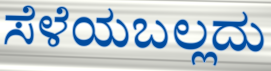
ಸೆಳೆಯಬಲ್ಲದು